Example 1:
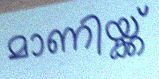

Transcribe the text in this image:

മാണിയ്ക്ക്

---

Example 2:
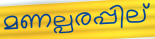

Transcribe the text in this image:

മണല്പരപ്പില്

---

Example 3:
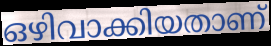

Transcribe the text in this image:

ഒഴിവാക്കിയതാണ്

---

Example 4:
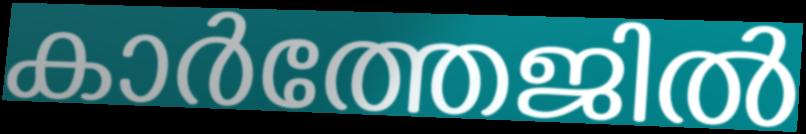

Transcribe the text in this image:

കാർത്തേജിൽ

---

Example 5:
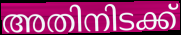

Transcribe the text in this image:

അതിനിടക്ക്